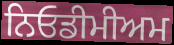
ਨਿਓਡੀਮੀਅਮ